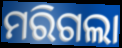
ମରିଗଲା